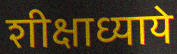
शीक्षाध्याये